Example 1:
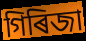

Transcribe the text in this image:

গিৰিজা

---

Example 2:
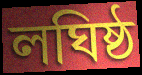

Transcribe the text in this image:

লঘিষ্ঠ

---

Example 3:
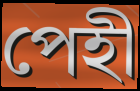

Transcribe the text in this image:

পেহী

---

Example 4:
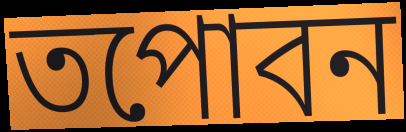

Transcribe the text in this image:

তপোবন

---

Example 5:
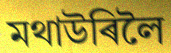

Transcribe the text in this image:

মথাউৰিলৈ